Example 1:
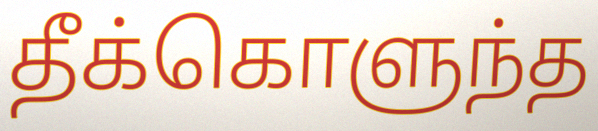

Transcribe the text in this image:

தீக்கொளுந்த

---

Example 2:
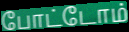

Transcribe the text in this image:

போட்டோம்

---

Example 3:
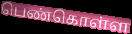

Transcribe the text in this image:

பெண்கொள்ள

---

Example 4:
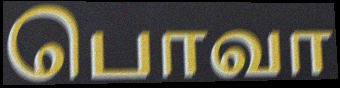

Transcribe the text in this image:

பொவா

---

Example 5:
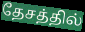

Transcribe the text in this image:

தேசத்தில்